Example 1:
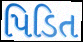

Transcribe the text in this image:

પિડિત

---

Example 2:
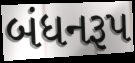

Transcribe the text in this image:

બંધનરૂપ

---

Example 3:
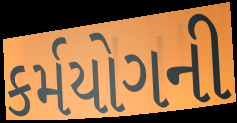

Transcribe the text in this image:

કર્મયોગની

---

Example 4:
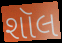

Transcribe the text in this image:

શૉલ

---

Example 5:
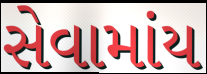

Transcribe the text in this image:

સેવામાંય